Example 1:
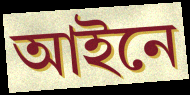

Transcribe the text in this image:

আইনে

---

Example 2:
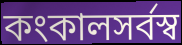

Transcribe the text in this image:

কংকালসর্বস্ব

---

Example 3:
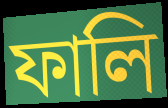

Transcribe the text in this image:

ফালি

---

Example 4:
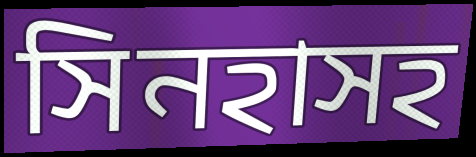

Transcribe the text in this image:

সিনহাসহ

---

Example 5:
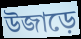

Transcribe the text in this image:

উজাড়ে